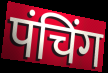
पंचिंग